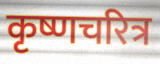
कृष्णचरित्र